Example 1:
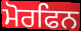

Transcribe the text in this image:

ਮੋਰਫਿਨ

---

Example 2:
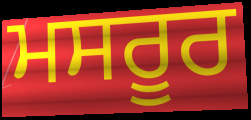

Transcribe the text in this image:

ਮਸਰੂਰ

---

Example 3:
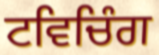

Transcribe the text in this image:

ਟਵਿਚਿੰਗ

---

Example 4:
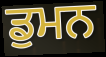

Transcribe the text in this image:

ਡੁਮਨ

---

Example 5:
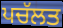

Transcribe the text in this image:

ਪਚੱਲਤ